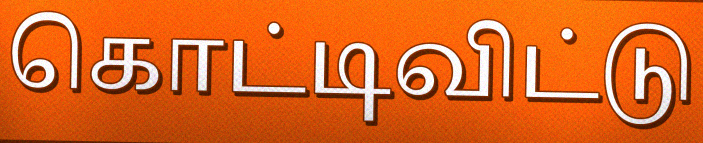
கொட்டிவிட்டு